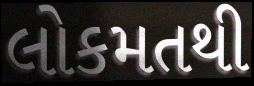
લોકમતથી